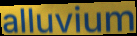
alluvium